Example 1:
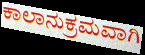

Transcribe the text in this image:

ಕಾಲಾನುಕ್ರಮವಾಗಿ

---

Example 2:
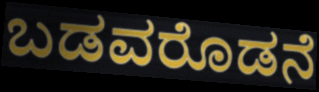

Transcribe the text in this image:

ಬಡವರೊಡನೆ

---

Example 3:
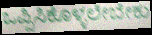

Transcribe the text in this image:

ಒಪ್ಪಿಸಿಕೊಳ್ಳಲೇಬೇಕು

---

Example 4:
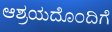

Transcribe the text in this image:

ಆಶ್ರಯದೊಂದಿಗೆ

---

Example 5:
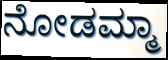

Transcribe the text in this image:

ನೋಡಮ್ಮಾ